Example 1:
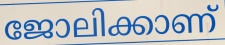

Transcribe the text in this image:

ജോലിക്കാണ്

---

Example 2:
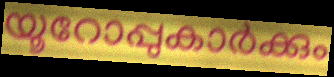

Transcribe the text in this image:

യൂറോപ്പുകാർക്കും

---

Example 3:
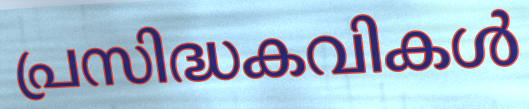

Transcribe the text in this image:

പ്രസിദ്ധകവികൾ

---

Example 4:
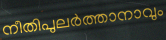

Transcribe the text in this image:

നീതിപുലർത്താനാവും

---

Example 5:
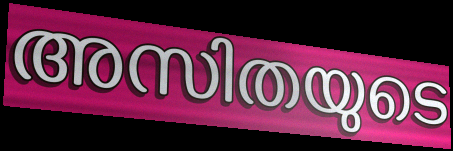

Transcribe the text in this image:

അസിതയുടെ